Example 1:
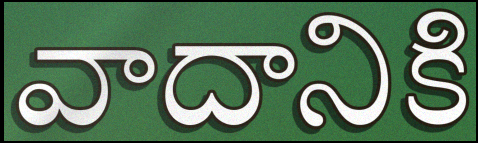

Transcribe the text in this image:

వాదానికి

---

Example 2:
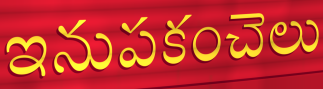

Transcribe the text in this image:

ఇనుపకంచెలు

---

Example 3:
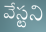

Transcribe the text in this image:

వేస్టని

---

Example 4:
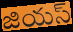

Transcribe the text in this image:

జియస్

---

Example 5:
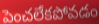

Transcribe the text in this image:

పెంచలేకపోవడం